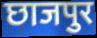
छाजपुर